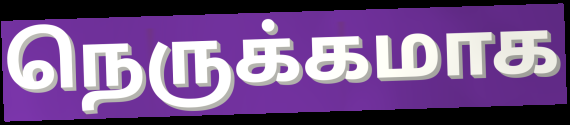
நெருக்கமாக